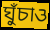
ঘুঁচাও